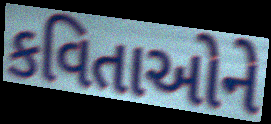
કવિતાઓને